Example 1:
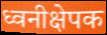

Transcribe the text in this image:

ध्वनीक्षेपक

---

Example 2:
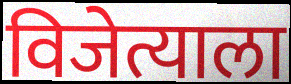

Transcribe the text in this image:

विजेत्याला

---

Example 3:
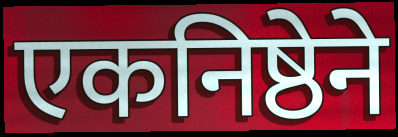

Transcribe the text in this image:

एकनिष्ठेने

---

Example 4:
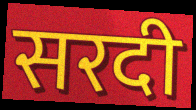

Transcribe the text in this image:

सरदी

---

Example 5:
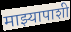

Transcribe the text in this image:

माझ्यापाशी